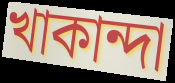
খাকান্দা